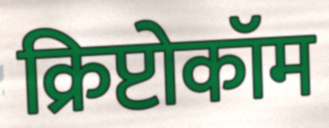
क्रिप्टोकॉम